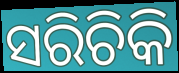
ସରିଚିକି